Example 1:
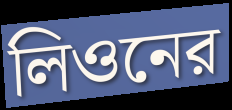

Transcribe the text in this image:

লিওনের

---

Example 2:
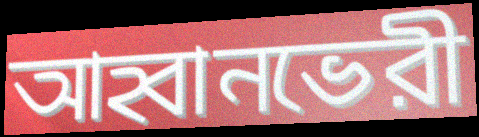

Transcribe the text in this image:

আহ্বানভেরী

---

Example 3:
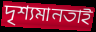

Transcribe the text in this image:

দৃশ্যমানতাই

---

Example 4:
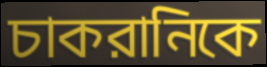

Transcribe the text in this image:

চাকরানিকে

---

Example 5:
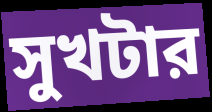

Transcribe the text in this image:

সুখটার